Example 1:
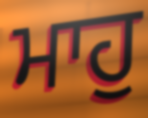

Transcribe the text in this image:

ਮਾਹੁ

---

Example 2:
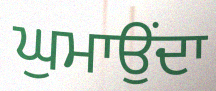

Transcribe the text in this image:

ਘੁਮਾਉਂਦਾ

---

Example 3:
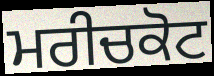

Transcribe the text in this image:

ਮਰੀਚਕੋਟ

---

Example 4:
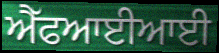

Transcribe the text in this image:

ਐੱਫਆਈਆਈ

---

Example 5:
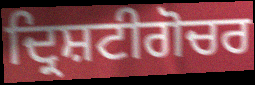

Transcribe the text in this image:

ਦ੍ਰਿਸ਼ਟੀਗੋਚਰ